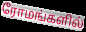
ரோமங்களில்